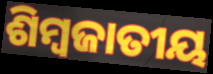
ଶିମ୍ବଜାତୀୟ